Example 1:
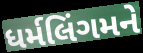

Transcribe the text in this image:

ધર્મલિંગમને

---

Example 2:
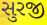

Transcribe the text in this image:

સુરજી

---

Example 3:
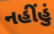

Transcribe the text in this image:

નહીંહું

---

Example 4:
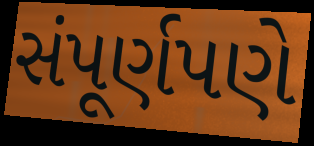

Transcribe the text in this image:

સંપૂર્ણપણે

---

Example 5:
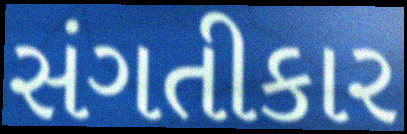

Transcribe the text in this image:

સંગતીકાર